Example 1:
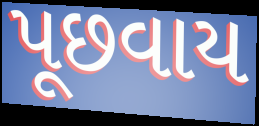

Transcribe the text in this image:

પૂછવાય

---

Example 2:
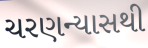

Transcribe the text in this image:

ચરણન્યાસથી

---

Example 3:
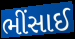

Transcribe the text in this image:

ભીંસાઈ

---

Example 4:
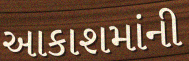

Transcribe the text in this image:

આકાશમાંની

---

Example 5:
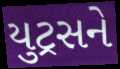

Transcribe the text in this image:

યુટ્રસને